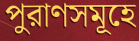
পুরাণসমূহে